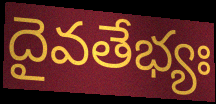
దైవతేభ్యః